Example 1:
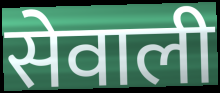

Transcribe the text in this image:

सेवाली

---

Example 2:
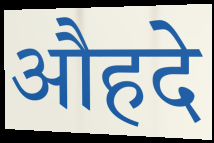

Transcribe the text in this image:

औहदे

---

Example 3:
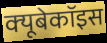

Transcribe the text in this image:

क्यूबेकॉइस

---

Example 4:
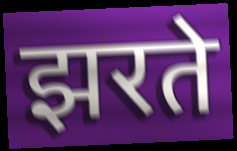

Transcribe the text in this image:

झरते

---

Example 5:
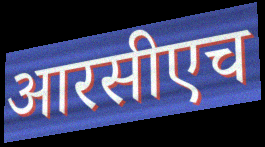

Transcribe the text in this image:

आरसीएच